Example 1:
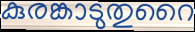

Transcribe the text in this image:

കുരങ്കാടുതുറൈ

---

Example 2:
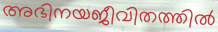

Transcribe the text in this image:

അഭിനയജീവിതത്തിൽ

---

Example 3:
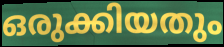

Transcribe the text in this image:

ഒരുക്കിയതും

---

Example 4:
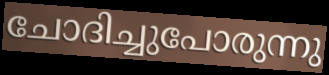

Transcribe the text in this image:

ചോദിച്ചുപോരുന്നു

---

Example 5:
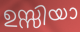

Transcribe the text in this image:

ഉസ്സിയാ